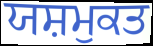
ਯਸ਼ਮੁਕਤ